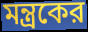
মন্ত্রকের